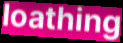
loathing